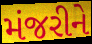
મંજરીને